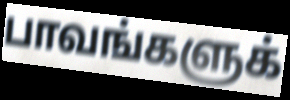
பாவங்களுக்